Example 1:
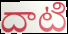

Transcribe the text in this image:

దాటి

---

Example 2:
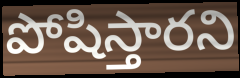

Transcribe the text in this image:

పోషిస్తారని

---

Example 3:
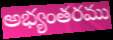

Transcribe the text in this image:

అభ్యంతరము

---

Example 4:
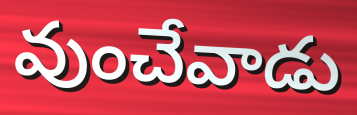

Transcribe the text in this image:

వుంచేవాడు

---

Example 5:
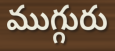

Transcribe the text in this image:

ముగ్గురు